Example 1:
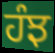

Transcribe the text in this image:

ਹੰਝ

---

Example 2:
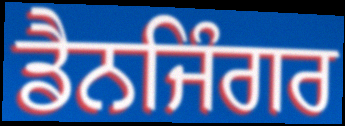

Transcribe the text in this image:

ਡੈਨਜਿੰਗਰ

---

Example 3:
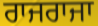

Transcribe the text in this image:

ਰਾਜਰਾਜਾ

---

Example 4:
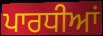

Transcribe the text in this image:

ਪਾਰਧੀਆਂ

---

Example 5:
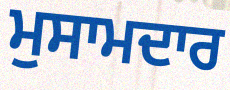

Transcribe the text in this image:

ਮੁਸਾਮਦਾਰ